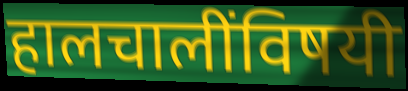
हालचालींविषयी